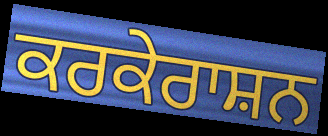
ਕਰਕੇਰਾਸ਼ਨ